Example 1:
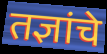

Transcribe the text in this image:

तज्ञांचे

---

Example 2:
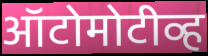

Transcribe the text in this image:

ऑटोमोटीव्ह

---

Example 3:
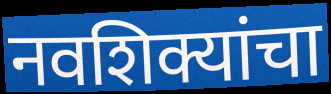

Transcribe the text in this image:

नवशिक्यांचा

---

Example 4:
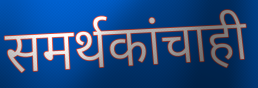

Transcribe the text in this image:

समर्थकांचाही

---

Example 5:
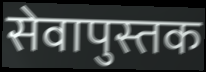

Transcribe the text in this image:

सेवापुस्तक